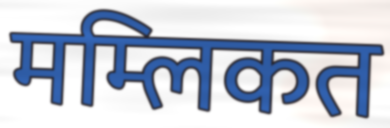
मम्लिकत